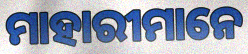
ମାହାରୀମାନେ